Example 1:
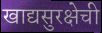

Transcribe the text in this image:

खाद्यसुरक्षेची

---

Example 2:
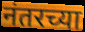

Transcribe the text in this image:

नंतरच्या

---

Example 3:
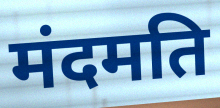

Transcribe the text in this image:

मंदमति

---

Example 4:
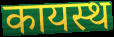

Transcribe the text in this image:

कायस्थ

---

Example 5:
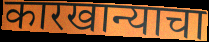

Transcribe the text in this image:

कारखान्याचा